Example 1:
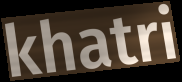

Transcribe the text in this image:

khatri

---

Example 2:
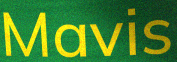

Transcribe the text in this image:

Mavis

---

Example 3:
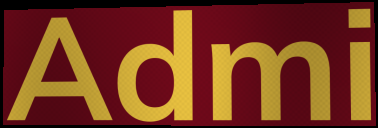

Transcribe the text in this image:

Admi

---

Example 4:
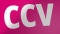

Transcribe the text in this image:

CCV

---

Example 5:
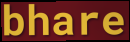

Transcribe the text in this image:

bhare